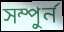
সম্পুৰ্ন